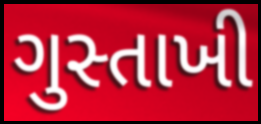
ગુસ્તાખી